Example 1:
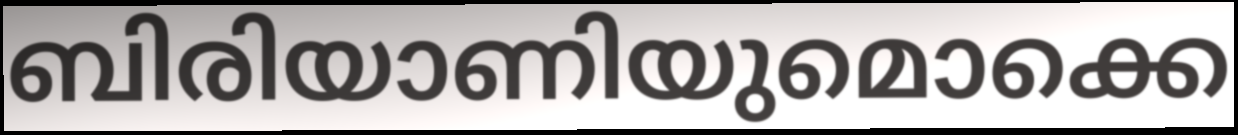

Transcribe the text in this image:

ബിരിയാണിയുമൊക്കെ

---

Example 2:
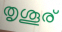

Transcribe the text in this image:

തൃശൂര്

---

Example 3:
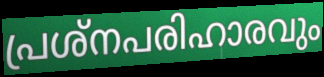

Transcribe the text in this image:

പ്രശ്നപരിഹാരവും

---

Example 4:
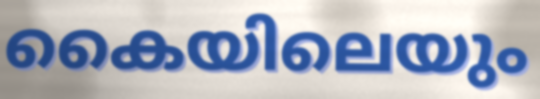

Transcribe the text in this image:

കൈയിലെയും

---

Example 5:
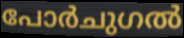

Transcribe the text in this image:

പോർചുഗൽ